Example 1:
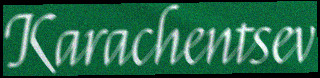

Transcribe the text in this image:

Karachentsev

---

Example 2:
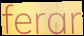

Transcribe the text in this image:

ferar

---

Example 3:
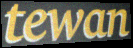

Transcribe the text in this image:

tewan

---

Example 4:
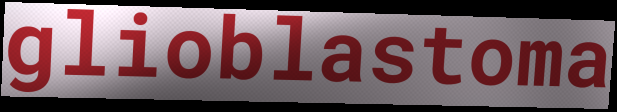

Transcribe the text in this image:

glioblastoma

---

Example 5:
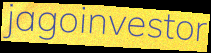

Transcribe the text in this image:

jagoinvestor